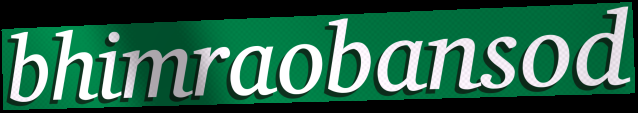
bhimraobansod